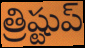
త్రిష్టుప్